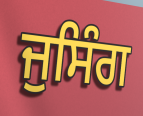
ਜੁਸਿੰਗ